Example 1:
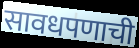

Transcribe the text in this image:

सावधपणाची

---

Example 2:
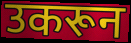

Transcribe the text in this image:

उकरून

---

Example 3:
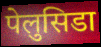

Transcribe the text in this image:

पेलुसिडा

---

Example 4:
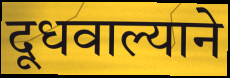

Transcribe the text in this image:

दूधवाल्याने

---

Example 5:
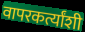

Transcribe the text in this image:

वापरकर्त्यांशी